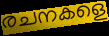
രചനകളെ